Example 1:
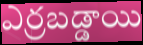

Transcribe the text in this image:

ఎర్రబడ్డాయి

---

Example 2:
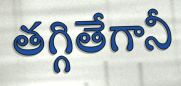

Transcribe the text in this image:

తగ్గితేగానీ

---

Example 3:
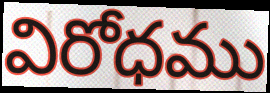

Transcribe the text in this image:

విరోధము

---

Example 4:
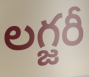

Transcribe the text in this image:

లగ్జరీ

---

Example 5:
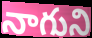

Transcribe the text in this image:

నాగుని